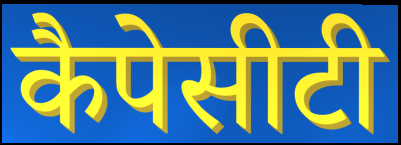
कैपेसीटी